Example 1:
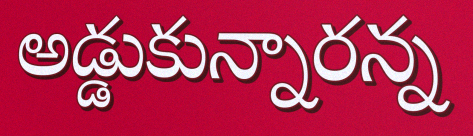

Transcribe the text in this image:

అడ్డుకున్నారన్న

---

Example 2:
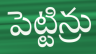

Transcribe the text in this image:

పెట్టిన్రు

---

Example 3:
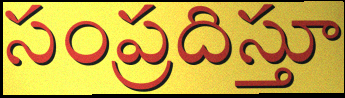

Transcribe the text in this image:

సంప్రదిస్తూ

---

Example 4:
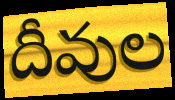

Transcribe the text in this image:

దీవుల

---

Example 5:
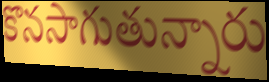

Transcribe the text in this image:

కొనసాగుతున్నారు